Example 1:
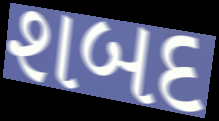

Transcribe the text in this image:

શબદ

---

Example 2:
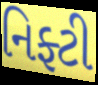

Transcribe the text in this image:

નિફ્ટી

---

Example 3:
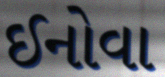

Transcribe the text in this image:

ઈનોવા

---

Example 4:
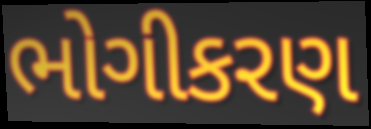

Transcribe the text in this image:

ભોગીકરણ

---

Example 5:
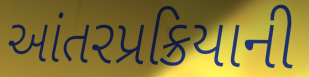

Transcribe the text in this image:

આંતરપ્રક્રિયાની